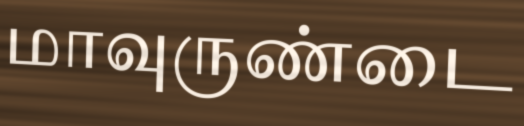
மாவுருண்டை